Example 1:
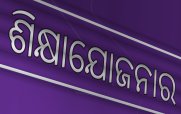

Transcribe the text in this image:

ଶିକ୍ଷାଯୋଜନାର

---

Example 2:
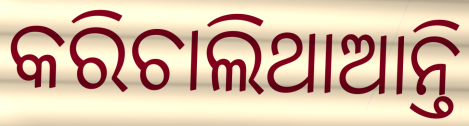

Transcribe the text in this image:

କରିଚାଲିଥାଆନ୍ତି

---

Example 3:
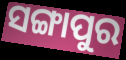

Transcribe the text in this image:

ସଙ୍ଗାପୁର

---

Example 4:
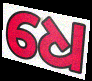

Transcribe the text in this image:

ଧେ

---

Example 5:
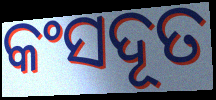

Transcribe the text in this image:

କଂସଦୂତ